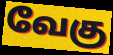
வேகு